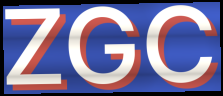
ZGC